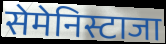
सेमेनिस्टाजा